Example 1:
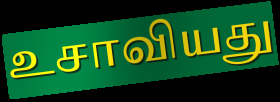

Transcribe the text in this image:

உசாவியது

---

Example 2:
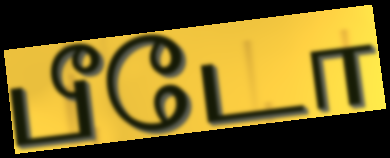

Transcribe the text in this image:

பீடோ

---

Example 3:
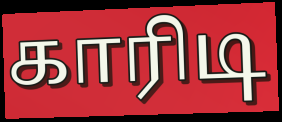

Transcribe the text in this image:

காரிடி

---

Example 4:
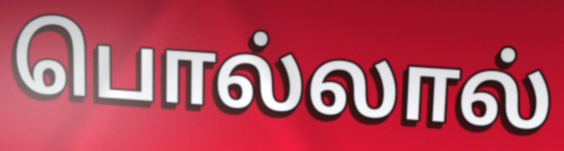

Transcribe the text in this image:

பொல்லால்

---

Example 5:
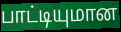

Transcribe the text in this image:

பாட்டியுமான